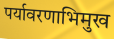
पर्यावरणाभिमुख